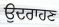
ਉਦਰਾਹਣ